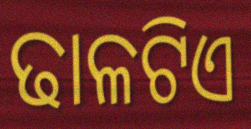
ଢାଳଟିଏ